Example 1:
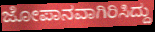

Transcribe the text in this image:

ಜೋಪಾನವಾಗಿರಿಸಿದ್ದು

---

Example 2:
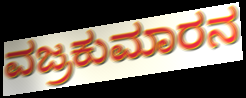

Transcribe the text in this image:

ವಜ್ರಕುಮಾರನ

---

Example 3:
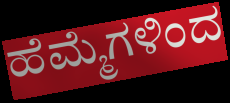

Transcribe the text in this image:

ಹೆಮ್ಮೆಗಳಿಂದ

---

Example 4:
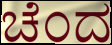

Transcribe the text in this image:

ಚೆಂದ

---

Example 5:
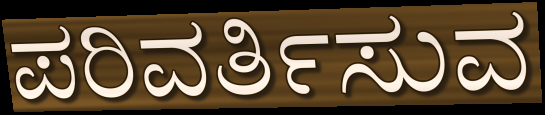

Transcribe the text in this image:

ಪರಿವರ್ತಿಸುವ